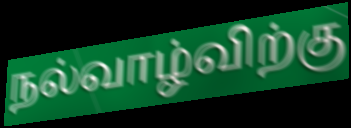
நல்வாழ்விற்கு